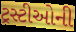
ટ્રસ્ટીઓની